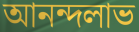
আনন্দলাভ